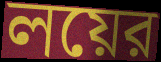
লয়ের